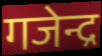
गजेन्‍द्र